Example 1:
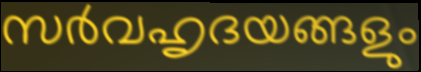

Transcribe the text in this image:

സർവഹൃദയങ്ങളും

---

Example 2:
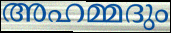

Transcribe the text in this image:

അഹമ്മദും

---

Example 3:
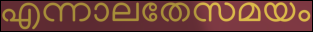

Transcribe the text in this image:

എന്നാലതേസമയം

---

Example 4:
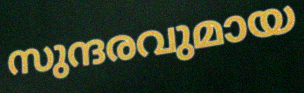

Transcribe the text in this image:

സുന്ദരവുമായ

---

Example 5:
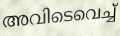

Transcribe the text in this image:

അവിടെവെച്ച്